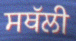
ਸਥੱਲੀ